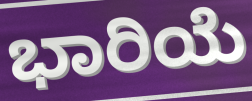
ಭಾರಿಯೆ